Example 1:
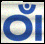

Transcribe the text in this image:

ଠାଁ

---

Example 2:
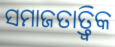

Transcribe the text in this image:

ସମାଜତାତ୍ତ୍ୱିକ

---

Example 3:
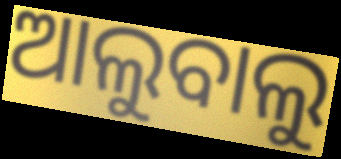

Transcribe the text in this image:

ଆଲୁବାଲୁ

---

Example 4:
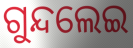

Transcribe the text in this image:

ଗୁନ୍ଦଲେଇ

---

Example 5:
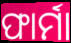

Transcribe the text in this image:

ଫାର୍ମା